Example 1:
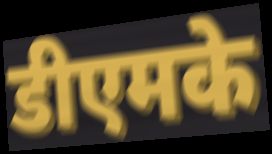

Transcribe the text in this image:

डीएमके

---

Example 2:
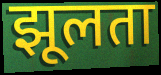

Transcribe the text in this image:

झूलता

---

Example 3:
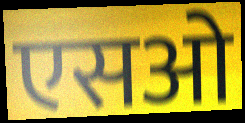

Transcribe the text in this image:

एसओ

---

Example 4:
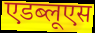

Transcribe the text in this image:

एडब्लूएस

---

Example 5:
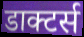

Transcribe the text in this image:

डाक्टर्स